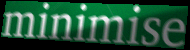
minimise